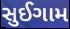
સુઈગામ